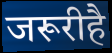
जरूरीहै